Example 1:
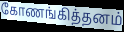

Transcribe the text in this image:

கோணங்கித்தனம்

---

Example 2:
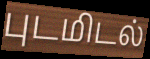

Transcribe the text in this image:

புடமிடல்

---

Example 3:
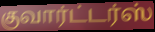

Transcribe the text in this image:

குவார்ட்டர்ஸ்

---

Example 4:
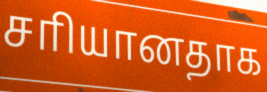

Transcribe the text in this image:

சரியானதாக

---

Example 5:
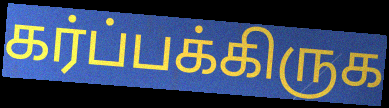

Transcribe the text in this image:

கர்ப்பக்கிருக